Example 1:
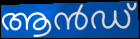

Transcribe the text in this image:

ആൻഡ്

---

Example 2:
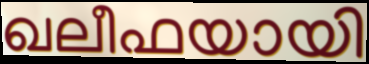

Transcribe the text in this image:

ഖലീഫയായി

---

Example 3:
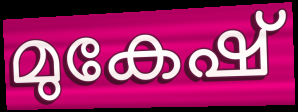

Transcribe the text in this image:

മുകേഷ്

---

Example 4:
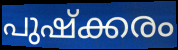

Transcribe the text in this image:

പുഷ്ക്കരം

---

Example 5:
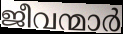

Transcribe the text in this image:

ജീവന്മാർ